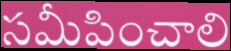
సమీపించాలి